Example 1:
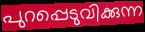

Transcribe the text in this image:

പുറപ്പെടുവിക്കുന്ന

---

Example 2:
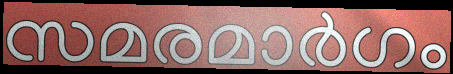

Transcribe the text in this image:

സമരമാർഗം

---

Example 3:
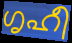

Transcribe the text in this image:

ഗൃഹീ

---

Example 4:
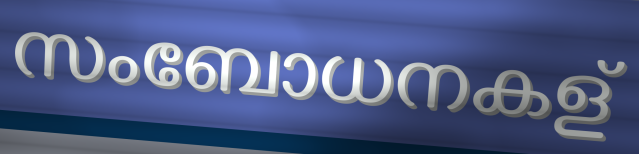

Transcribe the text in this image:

സംബോധനകള്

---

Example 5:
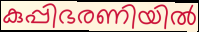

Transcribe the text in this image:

കുപ്പിഭരണിയിൽ